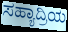
ಸಹ್ಯಾದ್ರಿಯ